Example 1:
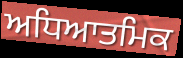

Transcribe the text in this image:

ਅਧਿਆਤਮਿਕ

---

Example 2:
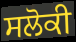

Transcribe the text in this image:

ਸਲੋਕੀ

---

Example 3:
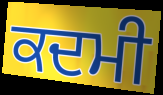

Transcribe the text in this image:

ਕਦਮੀ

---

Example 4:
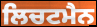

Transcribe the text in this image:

ਲਿਚਟਮੈਨ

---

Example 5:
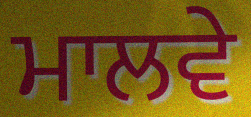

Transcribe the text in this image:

ਮਾਲਵੇ